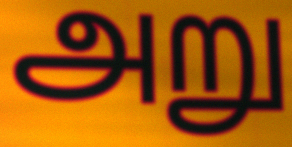
அறு